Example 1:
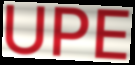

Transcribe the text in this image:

UPE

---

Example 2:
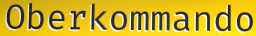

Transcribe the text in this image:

Oberkommando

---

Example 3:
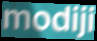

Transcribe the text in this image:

modiji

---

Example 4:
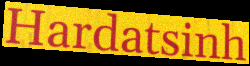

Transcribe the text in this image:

Hardatsinh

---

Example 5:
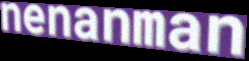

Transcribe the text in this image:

nenanman